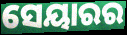
ସେୟାରର